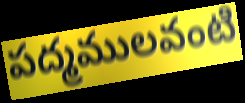
పద్మములవంటి